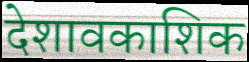
देशावकाशिक